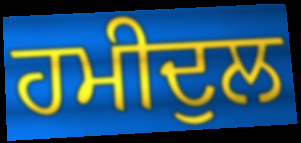
ਹਮੀਦੁਲ